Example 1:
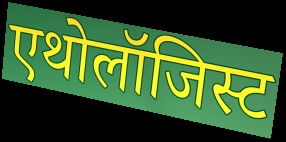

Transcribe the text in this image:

एथोलॉजिस्ट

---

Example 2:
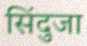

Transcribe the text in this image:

सिंदुजा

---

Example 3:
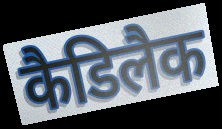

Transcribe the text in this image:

कैडिलैक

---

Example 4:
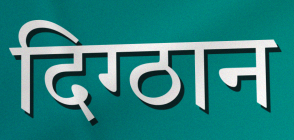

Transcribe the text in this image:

दिग्ठान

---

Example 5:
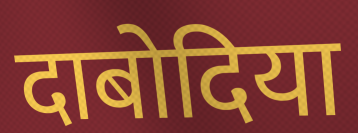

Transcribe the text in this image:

दाबोदिया